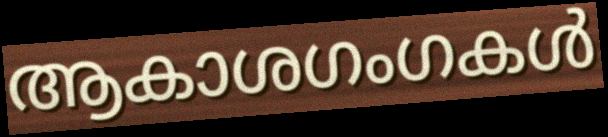
ആകാശഗംഗകൾ